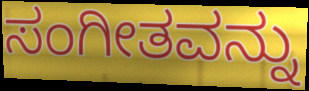
ಸಂಗೀತವನ್ನು